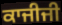
ਕਾਜੀਜੀ